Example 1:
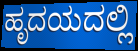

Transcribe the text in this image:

ಹೃದಯದಲ್ಲಿ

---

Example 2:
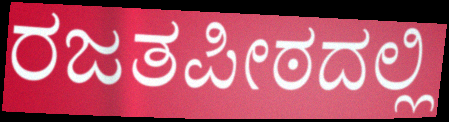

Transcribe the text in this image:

ರಜತಪೀಠದಲ್ಲಿ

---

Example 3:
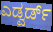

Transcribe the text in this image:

ಎಡ್ವರ್ಡ್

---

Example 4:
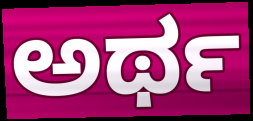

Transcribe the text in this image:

ಅರ್ಥ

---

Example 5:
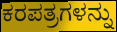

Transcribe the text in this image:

ಕರಪತ್ರಗಳನ್ನು